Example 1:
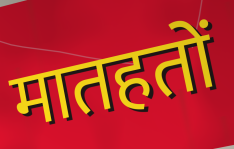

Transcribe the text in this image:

मातहतों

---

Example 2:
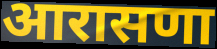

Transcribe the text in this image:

आरासणा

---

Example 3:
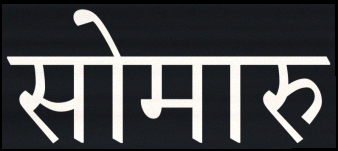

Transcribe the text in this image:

सोमारु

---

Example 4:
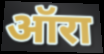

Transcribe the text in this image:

ऑरा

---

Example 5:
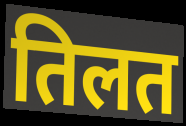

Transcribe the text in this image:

तिलत